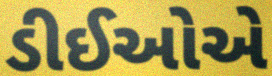
ડીઈઓએ